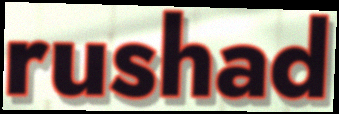
rushad